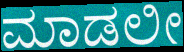
ಮಾಡಲೀ